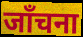
जाँचना